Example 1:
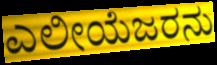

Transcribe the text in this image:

ಎಲೀಯೆಜರನು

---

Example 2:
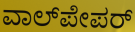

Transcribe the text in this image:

ವಾಲ್‌ಪೇಪರ್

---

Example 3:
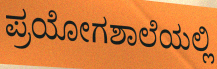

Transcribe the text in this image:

ಪ್ರಯೋಗಶಾಲೆಯಲ್ಲಿ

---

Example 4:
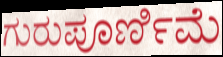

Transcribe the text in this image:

ಗುರುಪೂರ್ಣಿಮೆ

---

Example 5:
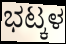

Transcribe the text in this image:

ಭಟ್ಕಳ